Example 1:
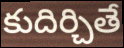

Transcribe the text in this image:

కుదిర్చితే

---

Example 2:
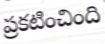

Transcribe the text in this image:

ప్రకటించింది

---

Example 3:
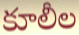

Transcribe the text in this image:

కూలీల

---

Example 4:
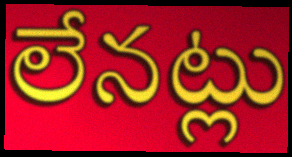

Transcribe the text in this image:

లేనట్లు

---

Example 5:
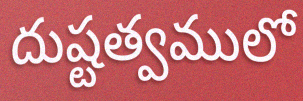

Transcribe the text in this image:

దుష్టత్వములో